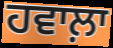
ਹਵਾਲ਼ਾ